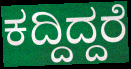
ಕದ್ದಿದ್ದರೆ